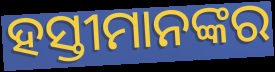
ହସ୍ତୀମାନଙ୍କର